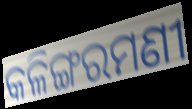
କଳିଙ୍ଗରମଣୀ